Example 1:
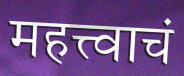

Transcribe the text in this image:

महत्त्वाचं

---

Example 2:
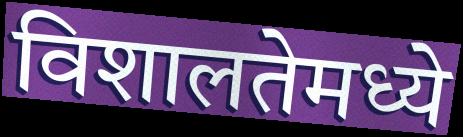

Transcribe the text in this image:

विशालतेमध्ये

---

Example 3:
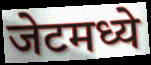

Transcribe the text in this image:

जेटमध्ये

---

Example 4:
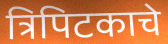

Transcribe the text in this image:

त्रिपिटकाचे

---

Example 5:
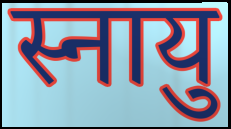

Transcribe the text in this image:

स्नायु